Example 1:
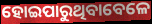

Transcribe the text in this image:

ହୋଇପାରୁଥିବାବେଳେ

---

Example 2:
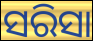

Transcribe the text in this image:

ସରିସା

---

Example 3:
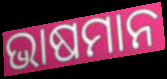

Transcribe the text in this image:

ଭାଷମାନ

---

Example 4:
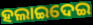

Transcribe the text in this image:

ହଲାଇଦେଇ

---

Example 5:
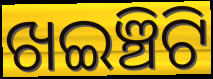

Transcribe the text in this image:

ଖଇଞ୍ଚିଟି